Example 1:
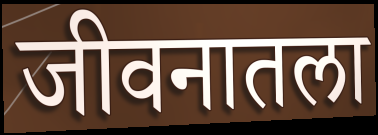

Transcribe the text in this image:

जीवनातला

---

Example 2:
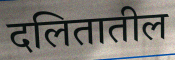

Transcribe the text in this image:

दलितातील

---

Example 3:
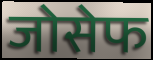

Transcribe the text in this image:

जोसेफ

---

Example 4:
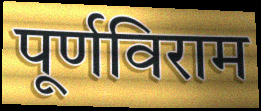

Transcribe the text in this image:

पूर्णविराम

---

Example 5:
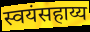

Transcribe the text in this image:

स्वयंसहाय्य